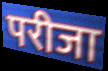
परीजा